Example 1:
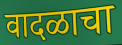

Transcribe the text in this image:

वादळाचा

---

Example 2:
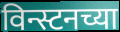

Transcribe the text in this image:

विन्स्टनच्या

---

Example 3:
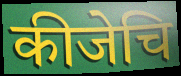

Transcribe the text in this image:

कीजेचि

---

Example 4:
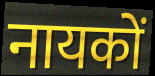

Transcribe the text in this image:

नायकों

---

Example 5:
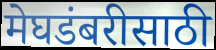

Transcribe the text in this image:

मेघडंबरीसाठी